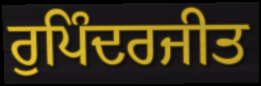
ਰੁਪਿੰਦਰਜੀਤ